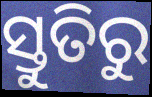
ସ୍ତୁତିରୁ